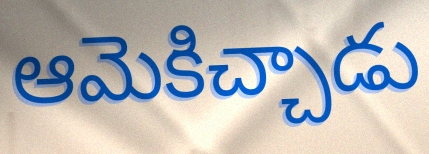
ఆమెకిచ్చాడు